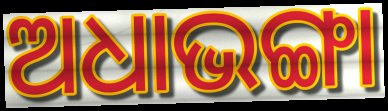
ଅଧାଭଙ୍ଗା